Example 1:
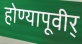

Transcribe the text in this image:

होण्यापूवीर्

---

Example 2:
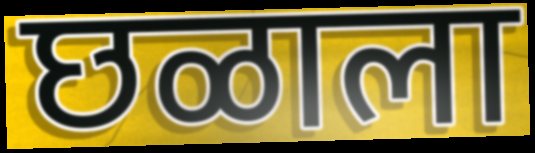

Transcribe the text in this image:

छळाला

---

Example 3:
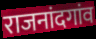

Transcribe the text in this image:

राजनांदगांव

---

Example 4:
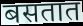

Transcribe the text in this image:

बसतात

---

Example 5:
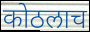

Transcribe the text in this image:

कोठलाच